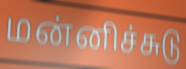
மன்னிச்சுடு